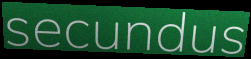
secundus